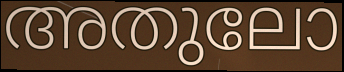
അതുലോ